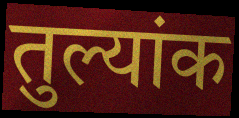
तुल्यांक